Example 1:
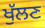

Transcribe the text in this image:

ਖੁੱਲਣ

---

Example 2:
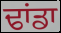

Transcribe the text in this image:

ਢਾਂਡਾ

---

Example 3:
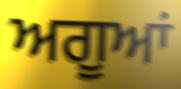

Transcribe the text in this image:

ਅਗੂਆਂ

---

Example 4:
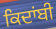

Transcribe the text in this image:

ਕਿਦਾਂਬੀ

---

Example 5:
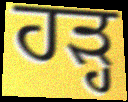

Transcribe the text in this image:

ਹੜ੍ਹ